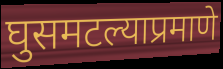
घुसमटल्याप्रमाणे